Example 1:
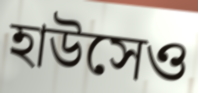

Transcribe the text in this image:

হাউসেও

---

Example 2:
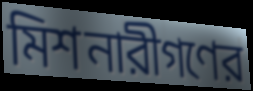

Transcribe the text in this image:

মিশনারীগণের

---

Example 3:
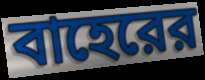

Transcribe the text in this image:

বাহেরের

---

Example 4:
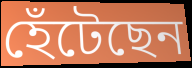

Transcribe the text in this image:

হেঁটেছেন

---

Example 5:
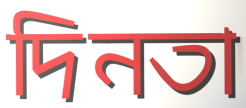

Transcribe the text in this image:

দিনতা